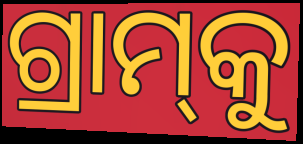
ଗ୍ରାମ୍‌କୁ